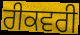
ਰੀਕਵਰੀ